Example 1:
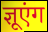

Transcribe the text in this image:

ज्ञूएंग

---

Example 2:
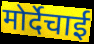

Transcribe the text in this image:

मोर्देचाई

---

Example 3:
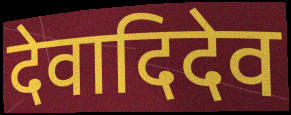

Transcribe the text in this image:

देवादिदेव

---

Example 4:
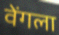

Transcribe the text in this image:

वेंगला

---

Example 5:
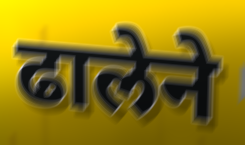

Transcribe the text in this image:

ढालेने